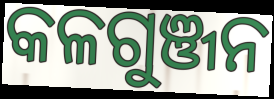
କଳଗୁଞ୍ଜନ